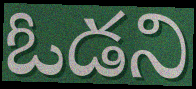
ఓడని